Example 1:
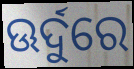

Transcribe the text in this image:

ଊର୍ଦୁରେ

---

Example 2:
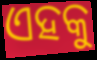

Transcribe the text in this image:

ଏହକୁ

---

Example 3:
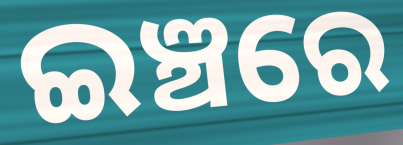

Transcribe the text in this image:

ଇଞ୍ଚରେ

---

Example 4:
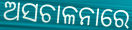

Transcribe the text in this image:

ଅସଚାଳନାରେ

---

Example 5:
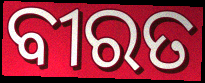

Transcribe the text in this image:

ବୀରତ